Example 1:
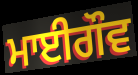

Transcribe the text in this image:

ਮਾਈਗੌਵ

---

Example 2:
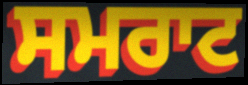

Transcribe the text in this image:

ਸਮਰਾਟ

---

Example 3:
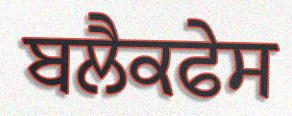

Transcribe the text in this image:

ਬਲੈਕਫੇਸ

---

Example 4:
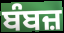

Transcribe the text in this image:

ਬੰਬਜ਼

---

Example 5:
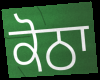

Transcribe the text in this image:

ਕੋਠਾ